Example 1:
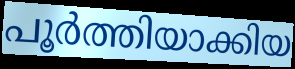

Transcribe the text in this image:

പൂർത്തിയാക്കിയ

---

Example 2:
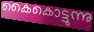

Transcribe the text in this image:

കൈകൊട്ടുന്നു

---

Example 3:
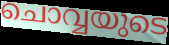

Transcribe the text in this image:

ചൊവ്വയുടെ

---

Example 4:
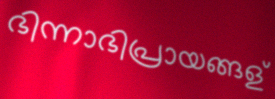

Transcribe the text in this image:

ഭിന്നാഭിപ്രായങ്ങള്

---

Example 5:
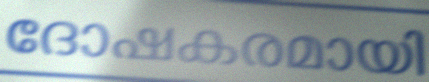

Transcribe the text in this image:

ദോഷകരമായി